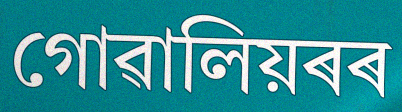
গোৱালিয়ৰৰ